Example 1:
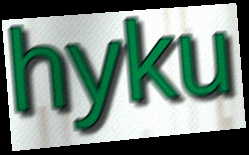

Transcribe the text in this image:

hyku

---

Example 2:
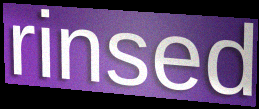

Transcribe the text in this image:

rinsed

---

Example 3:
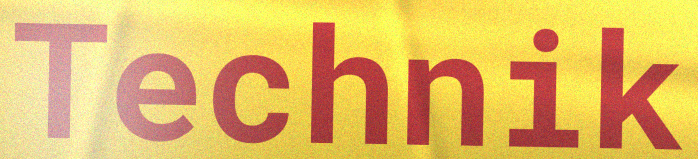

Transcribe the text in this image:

Technik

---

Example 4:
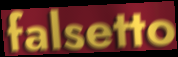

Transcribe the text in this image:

falsetto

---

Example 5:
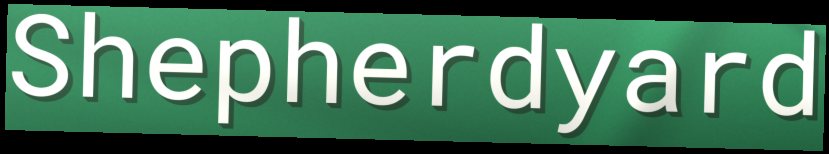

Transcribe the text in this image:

Shepherdyard